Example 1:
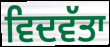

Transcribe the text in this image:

ਵਿਦਵੱਤਾ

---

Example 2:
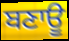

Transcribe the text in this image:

ਬਣਾਊ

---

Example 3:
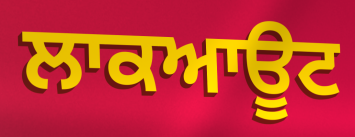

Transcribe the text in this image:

ਲਾਕਆਊਟ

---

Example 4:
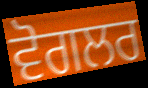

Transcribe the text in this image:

ਵੋਗਲਰ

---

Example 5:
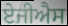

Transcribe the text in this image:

ਏਜੀਐਸ